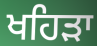
ਖਹਿਡ਼ਾ